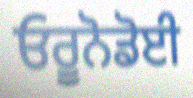
ਓਰੂਨੋਡੋਈ